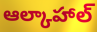
ఆల్కాహాల్